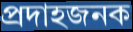
প্রদাহজনক